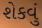
શેકવું